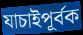
যাচাইপূর্বক